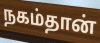
நகம்தான்